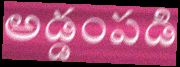
అడ్డంపడి